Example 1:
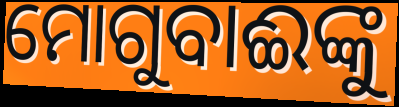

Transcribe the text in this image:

ମୋଗୁବାଈଙ୍କୁ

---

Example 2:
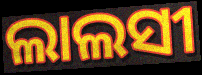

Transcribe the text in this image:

ଲାଲସୀ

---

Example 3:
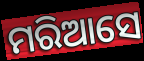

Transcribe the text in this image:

ମରିଆସେ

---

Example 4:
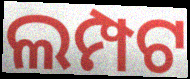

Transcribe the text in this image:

ଲମ୍ପଟ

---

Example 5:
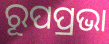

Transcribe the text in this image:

ରୂପପ୍ରଭା